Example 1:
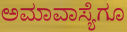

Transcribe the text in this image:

ಅಮಾವಾಸ್ಯೆಗೂ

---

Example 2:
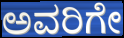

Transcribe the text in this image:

ಅವರಿಗೇ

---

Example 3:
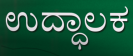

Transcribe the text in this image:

ಉದ್ಧಾಲಕ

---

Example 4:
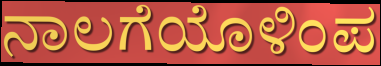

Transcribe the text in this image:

ನಾಲಗೆಯೊಳಿಂಪ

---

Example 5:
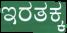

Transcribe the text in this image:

ಇರತಕ್ಕ